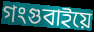
গংগুবাইয়ে